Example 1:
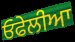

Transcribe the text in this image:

ਓਫੇਲੀਆ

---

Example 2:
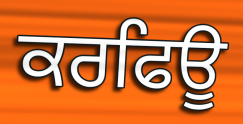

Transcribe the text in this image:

ਕਰਫਿਊ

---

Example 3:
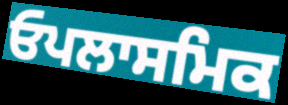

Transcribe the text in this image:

ਓਪਲਾਸਮਿਕ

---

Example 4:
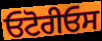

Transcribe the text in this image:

ਓਟੋਰੀਓਸ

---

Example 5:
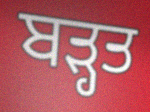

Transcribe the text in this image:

ਬੜ੍ਹਤ